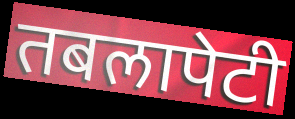
तबलापेटी